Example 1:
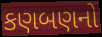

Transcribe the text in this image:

કણબણનો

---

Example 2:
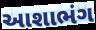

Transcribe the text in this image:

આશાભંગ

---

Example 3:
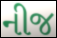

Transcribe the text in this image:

નીજ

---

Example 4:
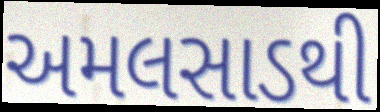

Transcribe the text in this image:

અમલસાડથી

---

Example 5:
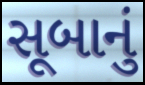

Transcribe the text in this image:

સૂબાનું